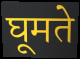
घूमते